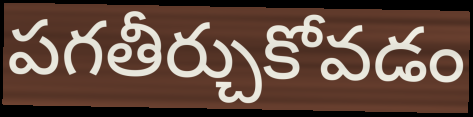
పగతీర్చుకోవడం